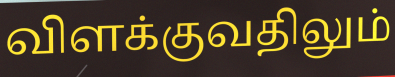
விளக்குவதிலும்